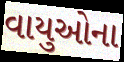
વાયુઓના